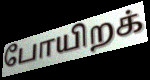
போயிறக்